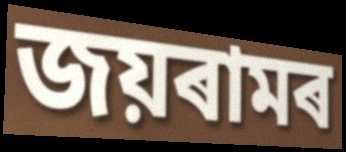
জয়ৰামৰ